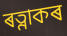
ৰত্নাকৰ